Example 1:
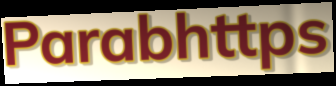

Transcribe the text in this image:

Parabhttps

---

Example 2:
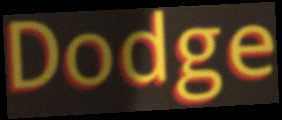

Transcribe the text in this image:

Dodge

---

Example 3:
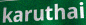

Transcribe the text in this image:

karuthai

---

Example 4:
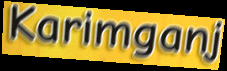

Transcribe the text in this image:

Karimganj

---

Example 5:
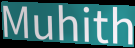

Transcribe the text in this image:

Muhith